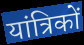
यांत्रिकों